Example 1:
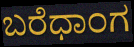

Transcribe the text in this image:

ಬರೆಧಾಂಗ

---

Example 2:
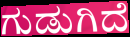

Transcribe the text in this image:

ಗುಡುಗಿದೆ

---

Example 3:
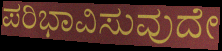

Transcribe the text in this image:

ಪರಿಭಾವಿಸುವುದೇ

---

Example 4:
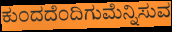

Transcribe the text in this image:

ಕುಂದದೆಂದಿಗುಮೆನ್ನಿಸುವ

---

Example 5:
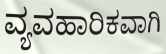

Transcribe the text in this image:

ವ್ಯವಹಾರಿಕವಾಗಿ